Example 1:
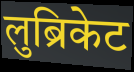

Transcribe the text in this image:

लुब्रिकेट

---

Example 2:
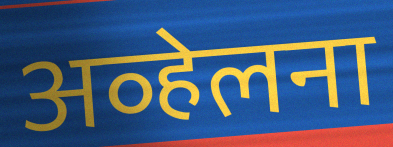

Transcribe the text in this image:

अव्हेलना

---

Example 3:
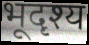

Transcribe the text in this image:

भूदृश्य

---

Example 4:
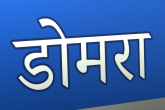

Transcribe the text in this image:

डोमरा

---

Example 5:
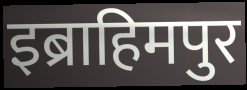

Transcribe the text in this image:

इब्राहिमपुर